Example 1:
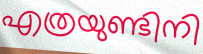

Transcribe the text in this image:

എത്രയുണ്ടിനി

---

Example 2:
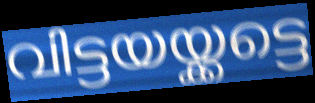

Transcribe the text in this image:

വിട്ടയയ്ക്കട്ടെ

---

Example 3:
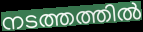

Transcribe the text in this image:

നടത്തത്തിൽ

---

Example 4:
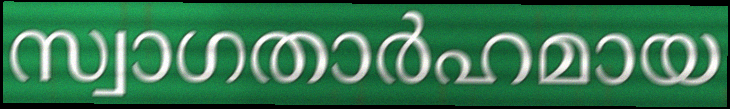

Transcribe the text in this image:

സ്വാഗതാർഹമായ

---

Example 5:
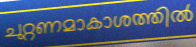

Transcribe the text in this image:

ചുറ്റണമാകാശത്തിൽ